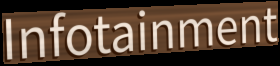
Infotainment